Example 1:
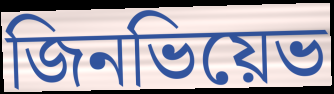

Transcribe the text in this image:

জিনভিয়েভ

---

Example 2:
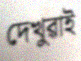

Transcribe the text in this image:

দেখুৱাই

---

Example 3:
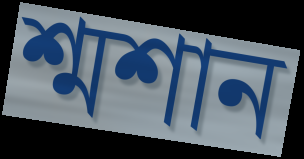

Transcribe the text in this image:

শ্মশান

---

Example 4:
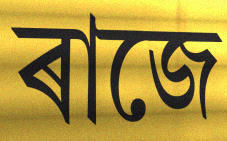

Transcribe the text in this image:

ৰাজে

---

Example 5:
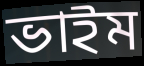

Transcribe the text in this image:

ভাইম